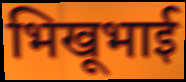
भिखूभाई